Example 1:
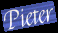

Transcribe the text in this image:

Pieter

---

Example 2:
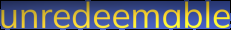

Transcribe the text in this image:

unredeemable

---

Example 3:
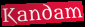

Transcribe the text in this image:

Kandam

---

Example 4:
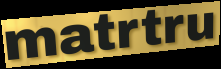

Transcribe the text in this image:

matrtru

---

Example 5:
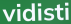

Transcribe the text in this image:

vidisti